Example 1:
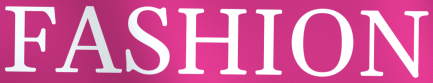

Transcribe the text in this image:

FASHION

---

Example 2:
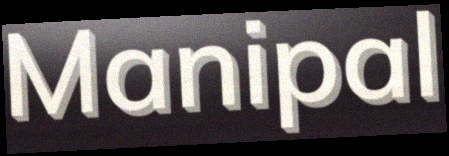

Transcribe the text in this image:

Manipal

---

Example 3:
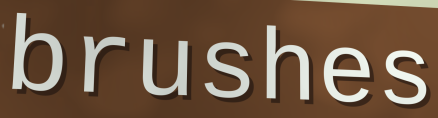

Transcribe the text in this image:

brushes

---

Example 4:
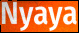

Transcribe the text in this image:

Nyaya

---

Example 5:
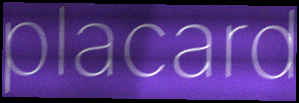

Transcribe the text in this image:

placard